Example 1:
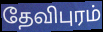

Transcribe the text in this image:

தேவிபுரம்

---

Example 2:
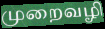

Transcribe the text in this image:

முறைவழி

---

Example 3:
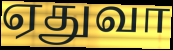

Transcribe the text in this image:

ஏதுவா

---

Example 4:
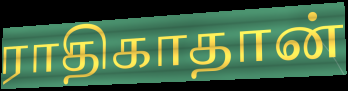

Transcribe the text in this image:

ராதிகாதான்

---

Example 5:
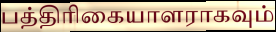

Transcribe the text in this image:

பத்திரிகையாளராகவும்